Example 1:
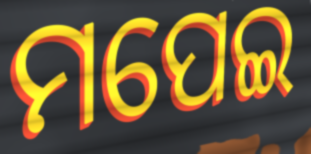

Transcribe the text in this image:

ମପେଇ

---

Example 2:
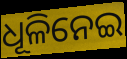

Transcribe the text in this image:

ଧୂଳିନେଇ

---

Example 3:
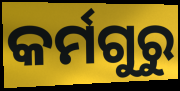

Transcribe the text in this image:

କର୍ମଗୁରୁ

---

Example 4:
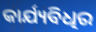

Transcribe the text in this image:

କାର୍ଯ୍ୟବିଧିର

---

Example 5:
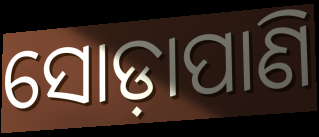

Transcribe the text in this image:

ସୋଡ଼ାପାଣି